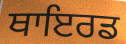
ਥਾਇਰਡ